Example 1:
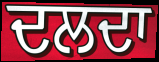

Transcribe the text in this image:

ਦਲਦਾ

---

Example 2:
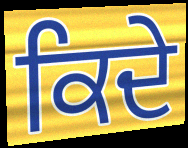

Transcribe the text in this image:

ਕਿਦੇ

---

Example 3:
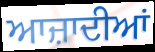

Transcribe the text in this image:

ਆਜ਼ਾਦੀਆਂ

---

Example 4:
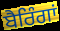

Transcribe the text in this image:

ਬੈਰਿੰਗਾਂ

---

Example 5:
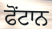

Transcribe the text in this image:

ਫੋਂਟਾਨ